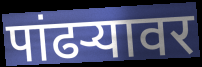
पांढर्‍यावर